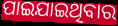
ପାଇଯାଇଥିବାର